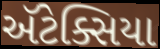
ઍટેક્સિયા